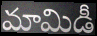
మామిడీ